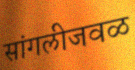
सांगलीजवळ